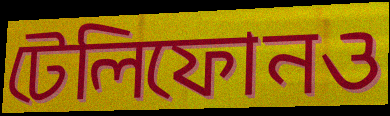
টেলিফোনও